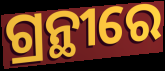
ଗ୍ରନ୍ଥୀରେ